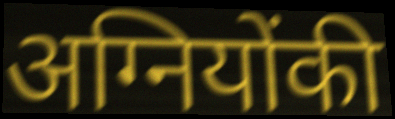
अग्नियोंकी